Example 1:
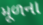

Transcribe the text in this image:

મૂળના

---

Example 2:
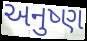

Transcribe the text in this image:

અનુષ્ણ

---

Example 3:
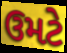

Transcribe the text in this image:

ઉમટે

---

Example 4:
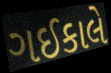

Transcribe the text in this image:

ગઈકાલે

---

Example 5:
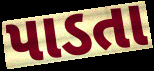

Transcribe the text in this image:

પાડતા